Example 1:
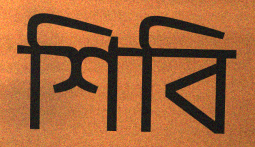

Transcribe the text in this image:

শিবি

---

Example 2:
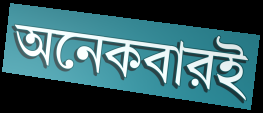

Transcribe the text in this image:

অনেকবারই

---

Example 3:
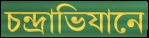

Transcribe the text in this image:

চন্দ্রাভিযানে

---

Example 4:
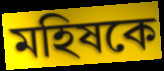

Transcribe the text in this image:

মহিষকে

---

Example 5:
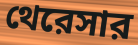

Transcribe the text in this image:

থেরেসার